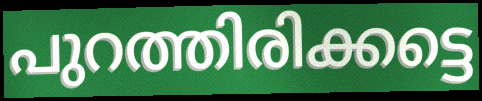
പുറത്തിരിക്കട്ടെ